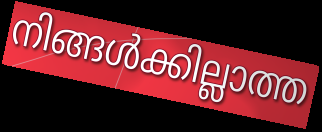
നിങ്ങൾക്കില്ലാത്ത